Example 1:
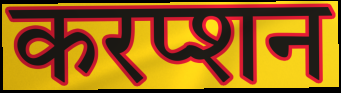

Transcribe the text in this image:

करप्शन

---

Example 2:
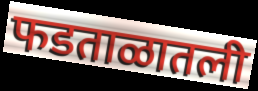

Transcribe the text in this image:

फडताळातली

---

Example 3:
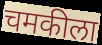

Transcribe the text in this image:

चमकीला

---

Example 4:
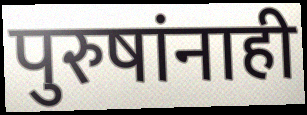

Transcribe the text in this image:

पुरुषांनाही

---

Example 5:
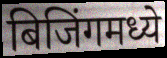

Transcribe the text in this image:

बिजिंगमध्ये